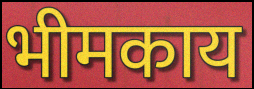
भीमकाय